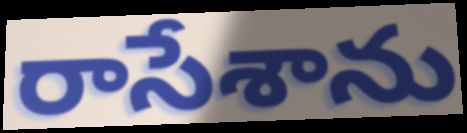
రాసేశాను